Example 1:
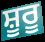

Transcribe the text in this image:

ਸ਼ੂਰੂ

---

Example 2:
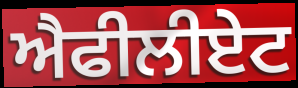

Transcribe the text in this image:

ਐਫੀਲੀਏਟ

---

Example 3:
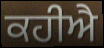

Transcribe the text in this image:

ਕਹੀਐ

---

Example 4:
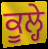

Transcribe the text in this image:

ਕੂਲ੍ਹੇ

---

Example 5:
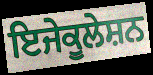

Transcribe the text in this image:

ਇਜੇਕੂਲੇਸ਼ਨ